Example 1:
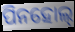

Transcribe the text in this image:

ପିନହୋଲ୍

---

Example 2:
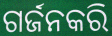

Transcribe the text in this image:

ଗର୍ଜନକରି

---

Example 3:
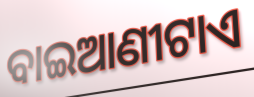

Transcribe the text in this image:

ବାଇଆଣୀଟାଏ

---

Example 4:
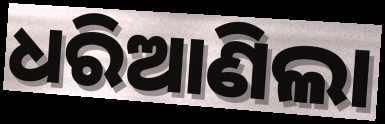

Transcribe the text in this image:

ଧରିଆଣିଲା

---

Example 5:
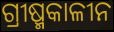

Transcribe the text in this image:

ଗ୍ରୀଷ୍ମକାଳୀନ